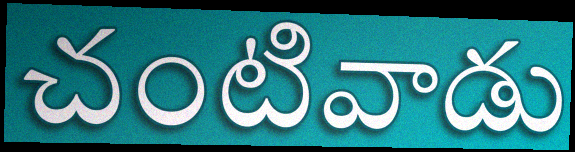
చంటివాడు